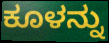
ಕೂಳನ್ನು